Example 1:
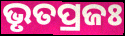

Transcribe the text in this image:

ଭୃତପ୍ରଜଃ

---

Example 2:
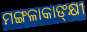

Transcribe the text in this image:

ମଙ୍ଗଳାକାଙ୍କ୍ଷୀ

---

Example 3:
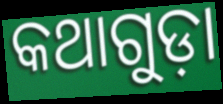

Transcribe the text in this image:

କଥାଗୁଡ଼ା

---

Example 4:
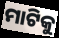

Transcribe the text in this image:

ମାଟିକୁ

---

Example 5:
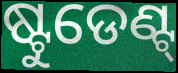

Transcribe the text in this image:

ଷ୍ଟୁଡେଣ୍ଟ୍